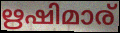
ഋഷിമാര്